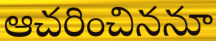
ఆచరించిననూ